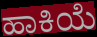
ಹಾಕಿಯೆ